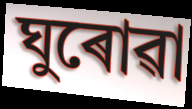
ঘুৰোৱা